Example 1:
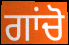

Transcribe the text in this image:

ਗਾਂਚੋ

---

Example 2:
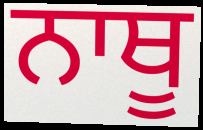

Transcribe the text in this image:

ਨਾਥੂ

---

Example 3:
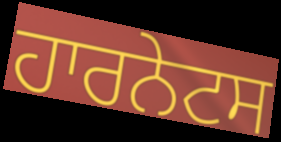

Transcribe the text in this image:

ਹਾਰਨੇਟਸ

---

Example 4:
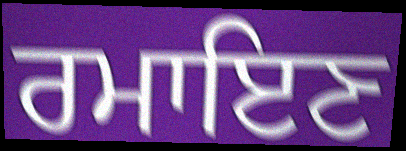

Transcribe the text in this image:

ਰਮਾਇਣ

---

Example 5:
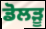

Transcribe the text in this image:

ਡੋਲੜੂ